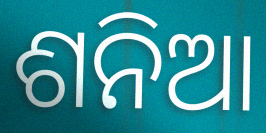
ଶନିଆ